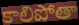
కాలిపోతా